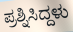
ಪ್ರಶ್ನಿಸಿದ್ದಳು